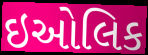
ઇઓલિક